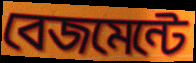
বেজমেন্টে